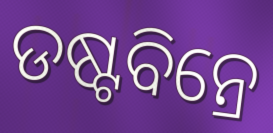
ଡଷ୍ଟବିନ୍ରେ